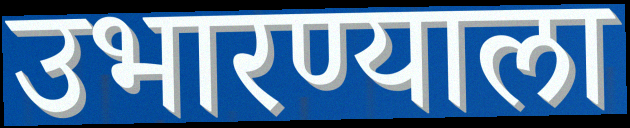
उभारण्याला